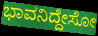
ಭಾವನಿದ್ದೇಸೋ